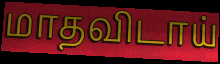
மாதவிடாய்